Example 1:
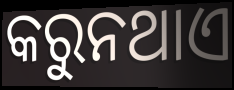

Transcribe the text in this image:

କରୁନଥାଏ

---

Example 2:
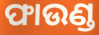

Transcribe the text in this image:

ଫାଉଣ୍ଡ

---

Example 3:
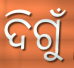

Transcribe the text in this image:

ଦିଗୁଁ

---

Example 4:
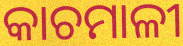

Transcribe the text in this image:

କାଚମାଳୀ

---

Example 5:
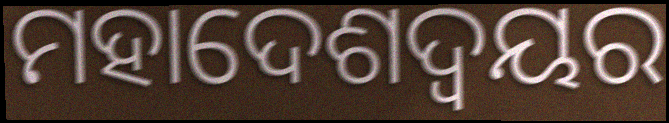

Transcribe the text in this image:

ମହାଦେଶଦ୍ଵୟର